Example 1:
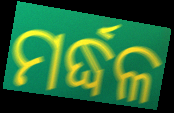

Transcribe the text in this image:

ମର୍ଦ୍ଧଳ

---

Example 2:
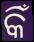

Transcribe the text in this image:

କିଁ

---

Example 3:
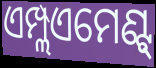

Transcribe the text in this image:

ଏମ୍ପ୍ଲଏମେଣ୍ଟ୍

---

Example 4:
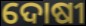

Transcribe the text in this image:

ଦୋଷୀ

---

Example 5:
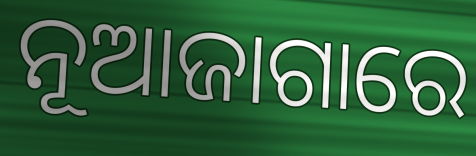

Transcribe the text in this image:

ନୂଆଜାଗାରେ